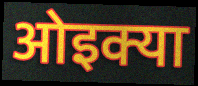
ओइक्या